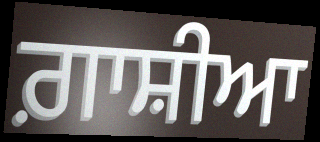
ਗ਼ਾਸ਼ੀਆ